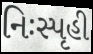
નિઃસ્પૃહી